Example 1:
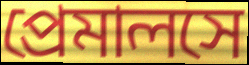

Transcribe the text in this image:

প্রেমালসে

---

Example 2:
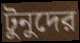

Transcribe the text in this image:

টুনুদের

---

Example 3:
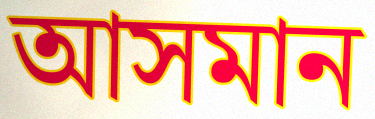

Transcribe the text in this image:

আসমান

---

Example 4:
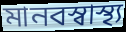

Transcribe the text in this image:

মানবস্বাস্থ্য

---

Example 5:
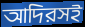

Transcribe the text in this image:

আদিরসই